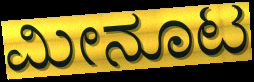
ಮೀನೂಟ